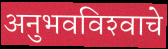
अनुभवविश्वाचे